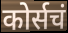
कोर्सचं